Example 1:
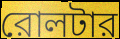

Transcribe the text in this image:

রোলটার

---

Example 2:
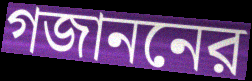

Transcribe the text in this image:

গজাননের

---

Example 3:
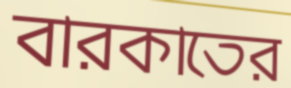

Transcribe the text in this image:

বারকাতের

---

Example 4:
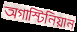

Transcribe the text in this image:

অগাস্টিনিয়ান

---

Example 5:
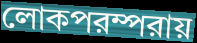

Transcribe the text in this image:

লোকপরম্পরায়